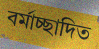
বর্মাচ্ছাদিত